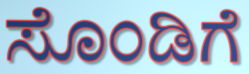
ಸೊಂಡಿಗೆ